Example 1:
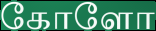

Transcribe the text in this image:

கோளோ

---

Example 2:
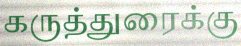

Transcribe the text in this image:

கருத்துரைக்கு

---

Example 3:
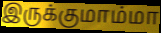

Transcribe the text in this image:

இருக்குமாம்மா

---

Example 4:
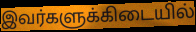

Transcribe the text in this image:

இவர்களுக்கிடையில்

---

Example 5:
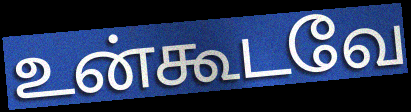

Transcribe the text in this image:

உன்கூடவே